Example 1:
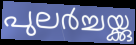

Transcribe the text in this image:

പുലർച്ചയ്ക്കു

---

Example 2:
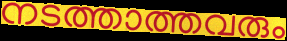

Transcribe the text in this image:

നടത്താത്തവരും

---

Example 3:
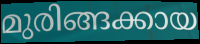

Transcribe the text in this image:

മുരിങ്ങക്കായ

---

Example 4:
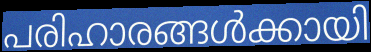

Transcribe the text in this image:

പരിഹാരങ്ങൾക്കായി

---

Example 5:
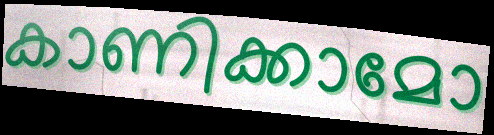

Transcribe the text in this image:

കാണിക്കാമോ